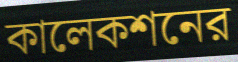
কালেকশনের